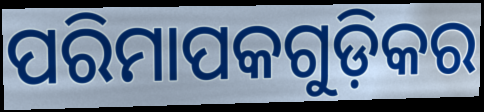
ପରିମାପକଗୁଡ଼ିକର